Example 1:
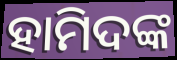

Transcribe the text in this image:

ହାମିଦଙ୍କ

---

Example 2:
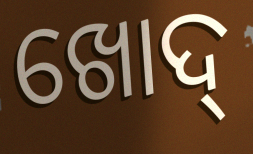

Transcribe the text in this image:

ଖୋଦ୍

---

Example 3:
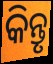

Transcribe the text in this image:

କିନ୍ତୃ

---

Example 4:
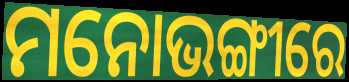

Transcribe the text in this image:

ମନୋଭଙ୍ଗୀରେ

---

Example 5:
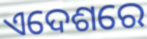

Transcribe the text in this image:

ଏଦେଶରେ